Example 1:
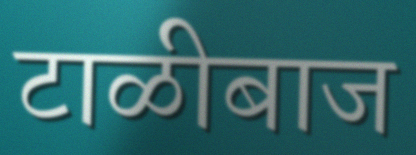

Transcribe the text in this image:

टाळीबाज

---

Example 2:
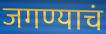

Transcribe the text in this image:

जगण्याचं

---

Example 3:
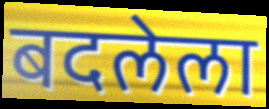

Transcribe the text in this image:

बदलेला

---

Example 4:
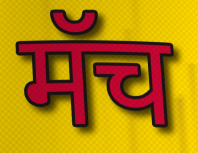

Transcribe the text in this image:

मॅच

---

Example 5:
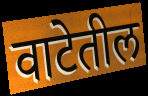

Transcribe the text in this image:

वाटेतील